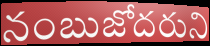
నంబుజోదరుని